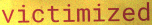
victimized